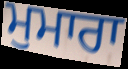
ਮੁਮਾਰਾ